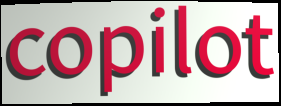
copilot